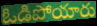
ఓడిపోయారు